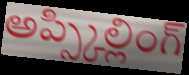
అప్స్కిల్లింగ్